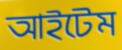
আইটেম